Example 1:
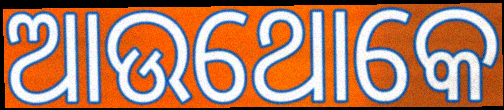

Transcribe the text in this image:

ଆଉଥୋକେ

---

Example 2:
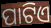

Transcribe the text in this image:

ପାଟିଏ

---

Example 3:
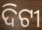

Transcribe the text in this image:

ଦିଟୀ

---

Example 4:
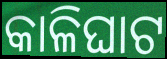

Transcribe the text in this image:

କାଳିଘାଟ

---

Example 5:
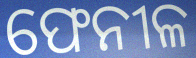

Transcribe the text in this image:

ଫେନୀଳ